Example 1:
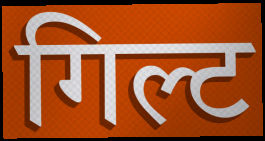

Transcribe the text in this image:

गिल्ट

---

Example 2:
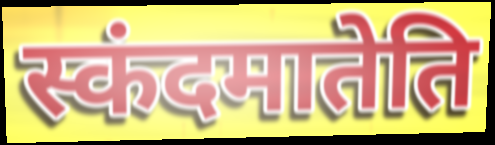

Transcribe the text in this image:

स्कंदमातेति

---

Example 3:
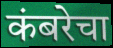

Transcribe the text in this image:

कंबरेचा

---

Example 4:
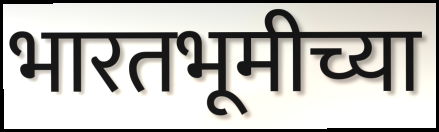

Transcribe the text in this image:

भारतभूमीच्या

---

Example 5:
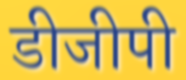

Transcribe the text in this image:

डीजीपी